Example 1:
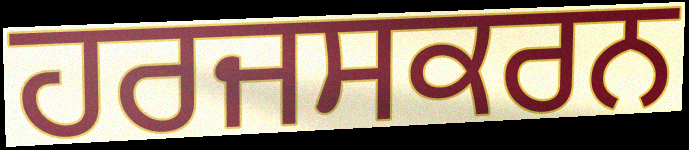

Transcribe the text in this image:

ਹਰਜਸਕਰਨ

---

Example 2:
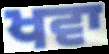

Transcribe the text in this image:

ਖਵਾ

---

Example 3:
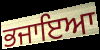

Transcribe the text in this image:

ਭਜਾਇਆ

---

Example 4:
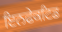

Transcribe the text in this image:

ਇਨਫੇਕਟਿਡ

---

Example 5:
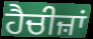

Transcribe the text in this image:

ਹੈਚੀਜ਼ਾਂ